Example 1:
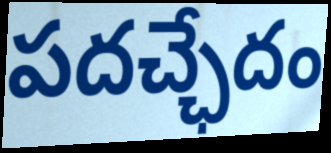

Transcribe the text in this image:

పదచ్ఛేదం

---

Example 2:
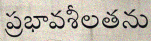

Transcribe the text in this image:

ప్రభావశీలతను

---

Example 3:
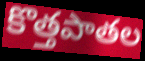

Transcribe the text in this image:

కొత్తపాతల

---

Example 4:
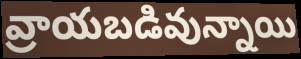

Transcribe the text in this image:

వ్రాయబడివున్నాయి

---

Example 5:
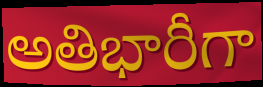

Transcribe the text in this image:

అతిభారీగా